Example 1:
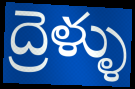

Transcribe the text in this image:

ద్రెళ్ళు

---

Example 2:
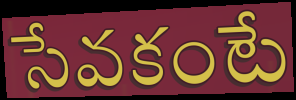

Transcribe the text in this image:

సేవకంటే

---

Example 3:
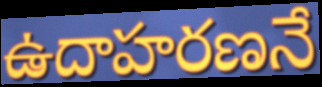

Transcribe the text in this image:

ఉదాహరణనే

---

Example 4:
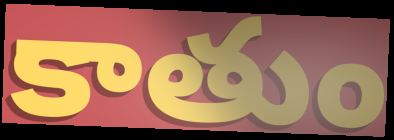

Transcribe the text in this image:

కాతుం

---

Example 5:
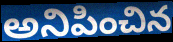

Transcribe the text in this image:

అనిపించిన